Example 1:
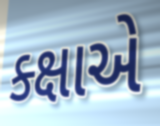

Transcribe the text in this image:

ક્ક્ષાએ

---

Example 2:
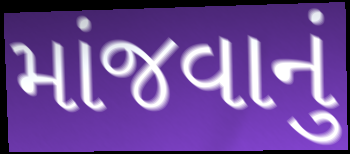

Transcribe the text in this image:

માંજવાનું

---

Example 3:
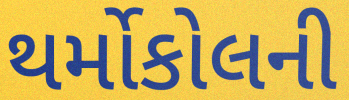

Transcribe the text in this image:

થર્મોકોલની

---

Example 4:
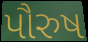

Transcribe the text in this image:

પૌરુષ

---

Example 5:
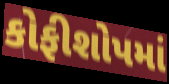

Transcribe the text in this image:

કોફીશોપમાં